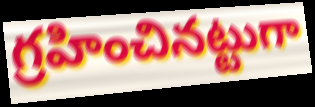
గ్రహించినట్టుగా